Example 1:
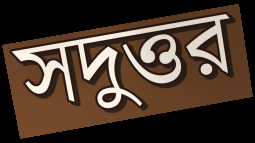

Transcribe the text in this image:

সদুত্তর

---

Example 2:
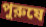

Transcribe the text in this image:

পুরুষে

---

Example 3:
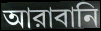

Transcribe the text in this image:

আরাবানি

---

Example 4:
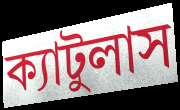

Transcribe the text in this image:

ক্যাটুলাস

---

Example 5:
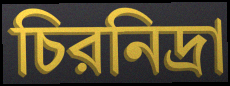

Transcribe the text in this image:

চিরনিদ্রা